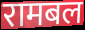
रामबल